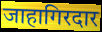
जाहागिरदार